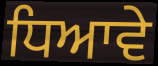
ਧਿਆਵੇ